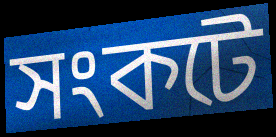
সংকটে